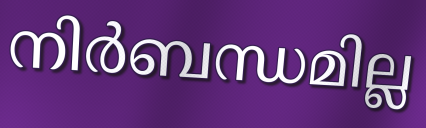
നിർബന്ധമില്ല